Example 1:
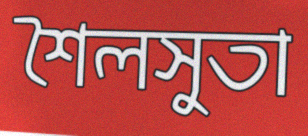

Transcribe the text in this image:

শৈলসুতা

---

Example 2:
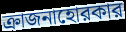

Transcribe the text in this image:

ক্রাজনাহোরকার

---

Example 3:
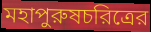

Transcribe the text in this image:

মহাপুরুষচরিত্রের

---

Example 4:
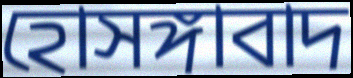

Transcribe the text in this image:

হোসঙ্গাবাদ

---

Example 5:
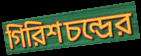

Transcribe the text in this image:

গিরিশচন্দ্রের